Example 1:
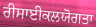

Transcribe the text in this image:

ਰੀਸਾਈਕਲਯੋਗਤਾ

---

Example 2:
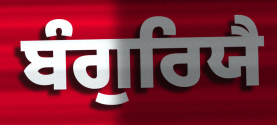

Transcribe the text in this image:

ਬੰਗੁਰਿਯੈ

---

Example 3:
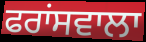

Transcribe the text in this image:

ਫਰਾਂਸਵਾਲਾ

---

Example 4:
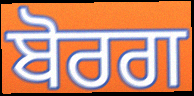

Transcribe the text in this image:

ਬੋਰਗ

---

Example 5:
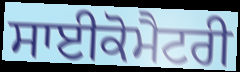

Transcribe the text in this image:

ਸਾਈਕੋਮੈਟਰੀ